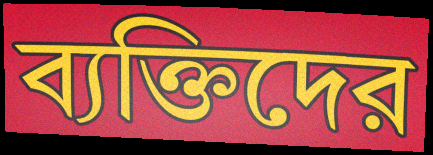
ব্যক্তিদের